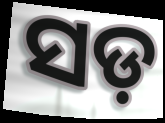
ସଡ଼